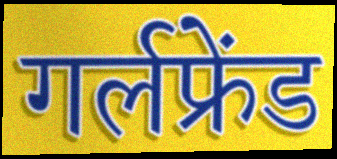
गर्लफ्रेंड